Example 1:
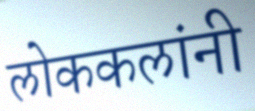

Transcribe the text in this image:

लोककलांनी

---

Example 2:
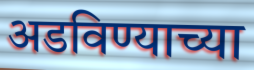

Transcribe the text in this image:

अडविण्याच्या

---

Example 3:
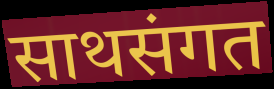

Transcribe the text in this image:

साथसंगत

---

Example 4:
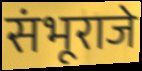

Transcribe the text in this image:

संभूराजे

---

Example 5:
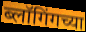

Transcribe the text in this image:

ब्लॉगिंगच्या